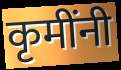
कृमींनी